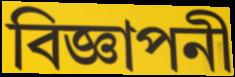
বিজ্ঞাপনী